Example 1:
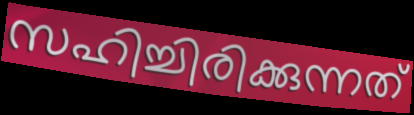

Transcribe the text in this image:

സഹിച്ചിരിക്കുന്നത്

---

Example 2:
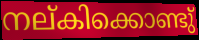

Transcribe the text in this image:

നല്കിക്കൊണ്ടു്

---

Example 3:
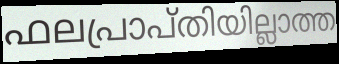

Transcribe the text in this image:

ഫലപ്രാപ്തിയില്ലാത്ത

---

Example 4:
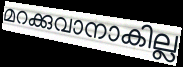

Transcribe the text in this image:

മറക്കുവാനാകില്ല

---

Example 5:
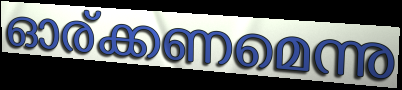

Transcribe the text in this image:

ഓര്ക്കണമെന്നു